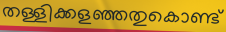
തള്ളിക്കളഞ്ഞതുകൊണ്ട്